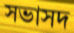
সভাসদ